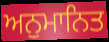
ਅਨੁਮਾਨਿਤ